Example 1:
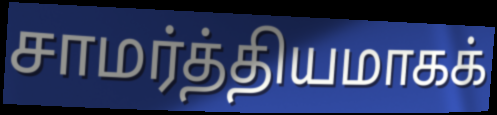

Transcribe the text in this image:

சாமர்த்தியமாகக்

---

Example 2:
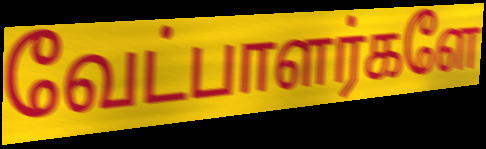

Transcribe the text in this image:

வேட்பாளர்களே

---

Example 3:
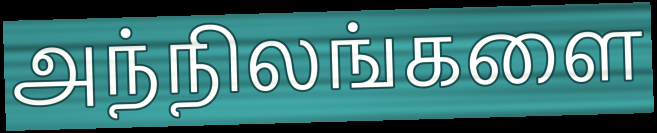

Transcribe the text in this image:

அந்நிலங்களை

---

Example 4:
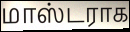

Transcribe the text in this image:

மாஸ்டராக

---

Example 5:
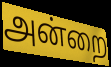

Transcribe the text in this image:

அன்றை